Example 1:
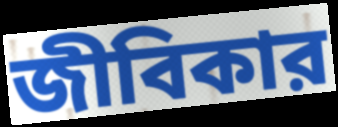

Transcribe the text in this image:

জীবিকার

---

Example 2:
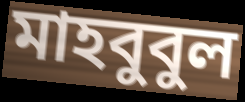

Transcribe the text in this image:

মাহবুবুল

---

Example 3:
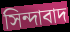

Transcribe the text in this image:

সিন্দাবাদ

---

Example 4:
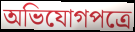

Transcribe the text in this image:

অভিযোগপত্রে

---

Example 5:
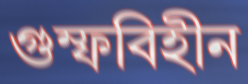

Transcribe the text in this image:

গুম্ফবিহীন